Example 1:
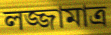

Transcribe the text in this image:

লজ্জামাত্র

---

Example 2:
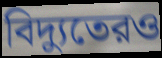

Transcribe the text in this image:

বিদ্যুতেরও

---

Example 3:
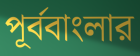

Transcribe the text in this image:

পূর্ববাংলার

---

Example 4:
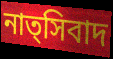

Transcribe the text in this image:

নাত্সিবাদ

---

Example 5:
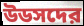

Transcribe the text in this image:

উডসদের